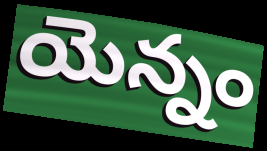
యెన్నం